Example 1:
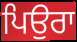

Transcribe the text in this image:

ਪਿਉਰਾ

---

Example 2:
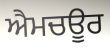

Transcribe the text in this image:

ਐਮਚਊਰ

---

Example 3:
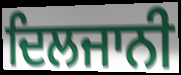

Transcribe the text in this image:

ਦਿਲਜਾਨੀ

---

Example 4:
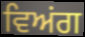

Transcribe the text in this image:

ਵਿਅਂਗ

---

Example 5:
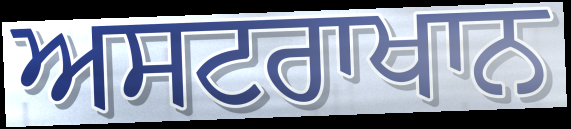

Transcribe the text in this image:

ਅਸਟਰਾਖਾਨ